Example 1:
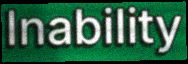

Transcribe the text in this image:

Inability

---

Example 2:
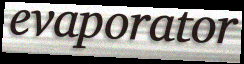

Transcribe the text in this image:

evaporator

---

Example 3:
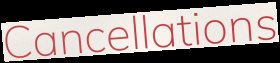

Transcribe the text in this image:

Cancellations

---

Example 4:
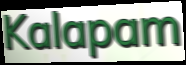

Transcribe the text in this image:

Kalapam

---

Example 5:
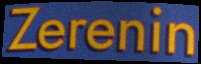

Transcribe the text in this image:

Zerenin